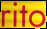
rito